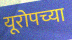
यूरोपच्या